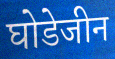
घोडेजीन